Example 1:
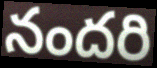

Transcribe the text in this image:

నందరి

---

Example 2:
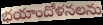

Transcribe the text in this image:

భయాందోళనలను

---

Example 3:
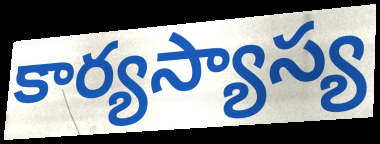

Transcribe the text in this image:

కార్యస్యాస్య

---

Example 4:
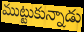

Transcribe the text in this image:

ముట్టుకున్నాడు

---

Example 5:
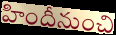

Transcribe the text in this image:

హిందీనుంచి